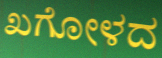
ಖಗೋಳದ